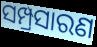
ସମ୍ପ୍ରସାରଣ